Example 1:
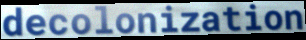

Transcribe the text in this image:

decolonization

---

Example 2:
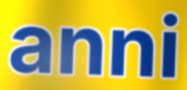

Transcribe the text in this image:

anni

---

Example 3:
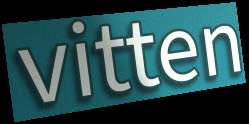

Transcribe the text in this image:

vitten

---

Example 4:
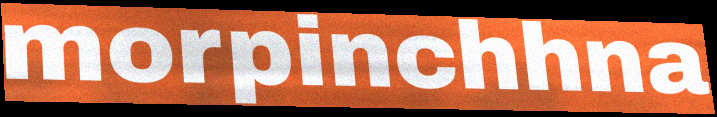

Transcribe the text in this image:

morpinchhna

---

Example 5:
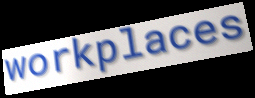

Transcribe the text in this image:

workplaces